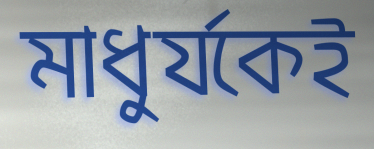
মাধুর্যকেই